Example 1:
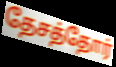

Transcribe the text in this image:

தேசத்தோர்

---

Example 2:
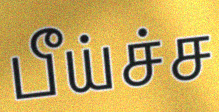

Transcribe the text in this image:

பீய்ச்ச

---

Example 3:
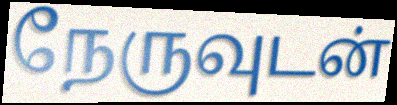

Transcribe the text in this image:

நேருவுடன்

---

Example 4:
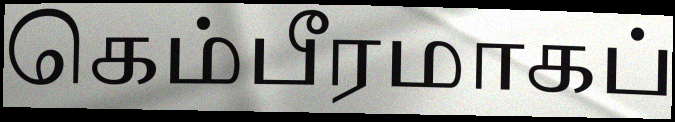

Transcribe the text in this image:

கெம்பீரமாகப்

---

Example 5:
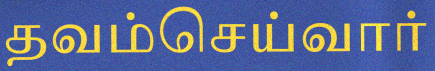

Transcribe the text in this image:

தவம்செய்வார்